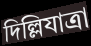
দিল্লিযাত্রা